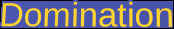
Domination